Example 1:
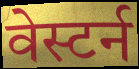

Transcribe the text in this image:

वेस्‍टर्न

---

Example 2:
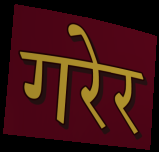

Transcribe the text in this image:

गरेर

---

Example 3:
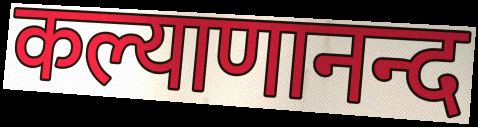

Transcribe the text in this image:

कल्याणानन्द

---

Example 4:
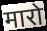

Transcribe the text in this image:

मारो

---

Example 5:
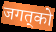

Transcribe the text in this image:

जगत्‌को